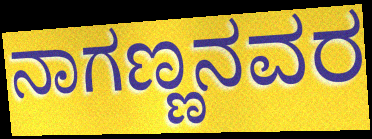
ನಾಗಣ್ಣನವರ